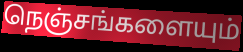
நெஞ்சங்களையும்